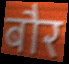
बौर